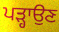
ਪੜ੍ਹਾਉਣ